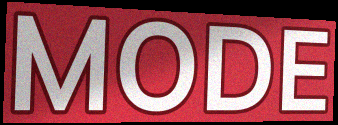
MODE